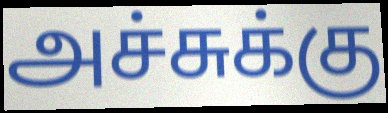
அச்சுக்கு